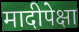
मादीपेक्षा